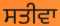
ਸਤੀਵਾ